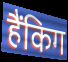
हैंकिग